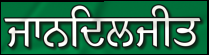
ਜਾਨਦਿਲਜੀਤ